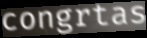
congrtas